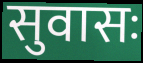
सुवासः